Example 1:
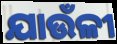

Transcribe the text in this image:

ଯାଉଁଳୀ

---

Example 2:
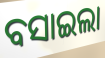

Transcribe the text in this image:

ବସାଇଲା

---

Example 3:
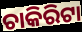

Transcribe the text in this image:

ଚାକିରିଟା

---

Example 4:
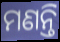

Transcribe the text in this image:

ମଣନ୍ତି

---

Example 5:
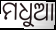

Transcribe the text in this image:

ମଧୁଆ